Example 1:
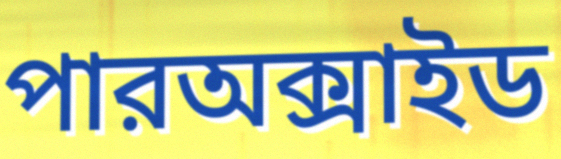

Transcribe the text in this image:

পারঅক্সাইড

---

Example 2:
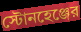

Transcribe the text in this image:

স্টোনহেঞ্জের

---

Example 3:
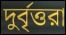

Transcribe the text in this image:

দুর্বৃত্তরা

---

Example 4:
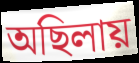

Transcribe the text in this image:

অছিলায়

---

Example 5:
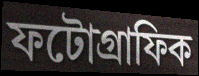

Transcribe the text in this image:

ফটোগ্রাফিক